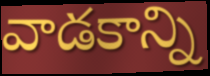
వాడకాన్ని